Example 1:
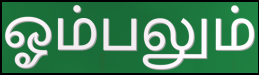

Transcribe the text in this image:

ஓம்பலும்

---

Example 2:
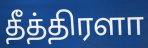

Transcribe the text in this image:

தீத்திரளா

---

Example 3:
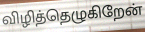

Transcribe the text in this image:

விழித்தெழுகிறேன்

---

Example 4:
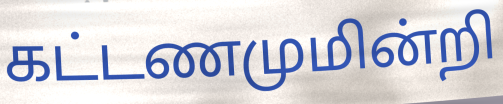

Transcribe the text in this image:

கட்டணமுமின்றி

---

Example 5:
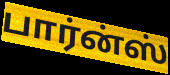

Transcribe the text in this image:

பார்ன்ஸ்